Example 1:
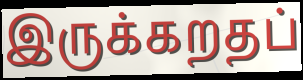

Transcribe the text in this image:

இருக்கறதப்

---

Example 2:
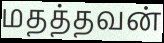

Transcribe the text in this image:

மதத்தவன்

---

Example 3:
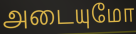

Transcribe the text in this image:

அடையுமோ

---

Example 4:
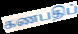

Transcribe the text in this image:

கணபதிப்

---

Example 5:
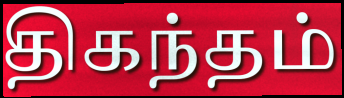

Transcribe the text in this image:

திகந்தம்